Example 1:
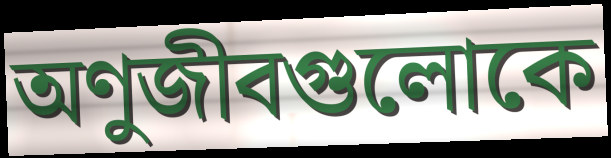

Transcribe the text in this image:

অণুজীবগুলোকে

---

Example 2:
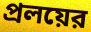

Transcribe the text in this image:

প্রলয়ের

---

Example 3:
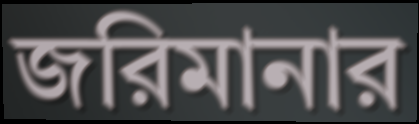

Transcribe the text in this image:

জরিমানার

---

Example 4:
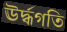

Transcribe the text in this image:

ঊর্দ্ধগতি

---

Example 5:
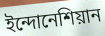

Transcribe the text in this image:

ইন্দোনেশিয়ান